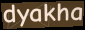
dyakha